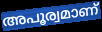
അപൂര്വമാണ്